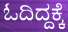
ಓದಿದ್ದಕ್ಕೆ